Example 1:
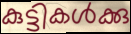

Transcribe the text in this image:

കുട്ടികൾക്കു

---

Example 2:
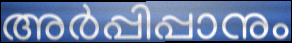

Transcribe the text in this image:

അർപ്പിപ്പാനും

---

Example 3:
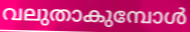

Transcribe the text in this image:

വലുതാകുമ്പോൾ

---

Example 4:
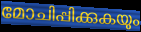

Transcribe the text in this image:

മോചിപ്പിക്കുകയും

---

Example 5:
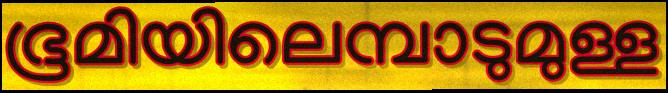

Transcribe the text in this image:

ഭൂമിയിലെമ്പാടുമുള്ള